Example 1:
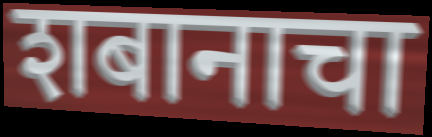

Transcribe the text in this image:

शबानाचा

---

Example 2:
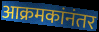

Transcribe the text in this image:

आक्रमकांनंतर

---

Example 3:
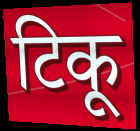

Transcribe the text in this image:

टिकू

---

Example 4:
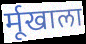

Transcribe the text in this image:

र्मूखाला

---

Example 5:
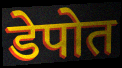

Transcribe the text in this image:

डेपोत